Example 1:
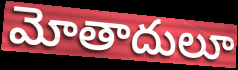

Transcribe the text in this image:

మోతాదులూ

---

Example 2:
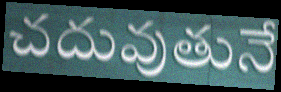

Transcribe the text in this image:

చదువుతునే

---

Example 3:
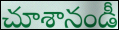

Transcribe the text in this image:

చూశానండీ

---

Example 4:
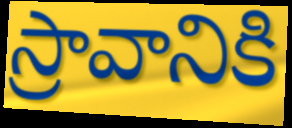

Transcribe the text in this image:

స్రావానికి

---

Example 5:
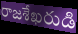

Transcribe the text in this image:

రాజశేఖరుడి